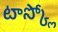
టాస్క్లో